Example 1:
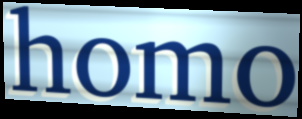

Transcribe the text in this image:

homo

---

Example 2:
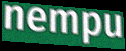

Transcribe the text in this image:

nempu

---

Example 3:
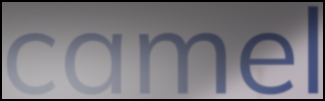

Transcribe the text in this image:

camel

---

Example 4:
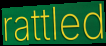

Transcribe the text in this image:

rattled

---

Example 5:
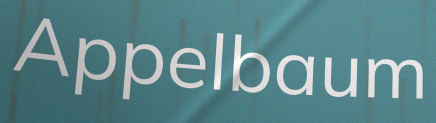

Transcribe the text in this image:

Appelbaum